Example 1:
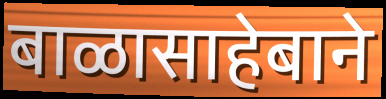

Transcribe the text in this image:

बाळासाहेबाने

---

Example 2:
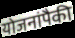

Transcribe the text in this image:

योजनांपैकी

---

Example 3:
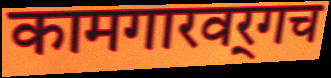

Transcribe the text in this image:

कामगारवर्गच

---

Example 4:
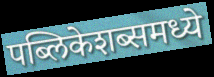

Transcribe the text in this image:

पब्लिकेशब्समध्ये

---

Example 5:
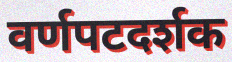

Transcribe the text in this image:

वर्णपटदर्शक